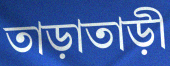
তাড়াতাড়ী